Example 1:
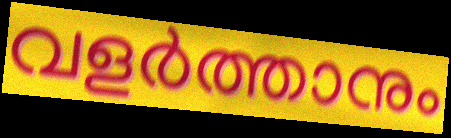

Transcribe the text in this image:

വളർത്താനും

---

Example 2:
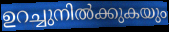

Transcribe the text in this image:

ഉറച്ചുനിൽക്കുകയും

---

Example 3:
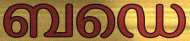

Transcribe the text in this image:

ബഡെ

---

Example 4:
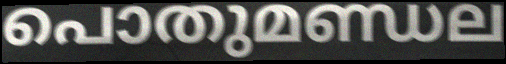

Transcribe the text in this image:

പൊതുമണ്ഡല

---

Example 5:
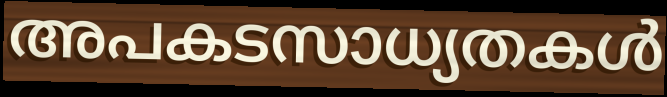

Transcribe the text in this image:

അപകടസാധ്യതകൾ